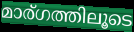
മാര്ഗത്തിലൂടെ